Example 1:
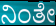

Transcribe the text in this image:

ನಿಂತೇ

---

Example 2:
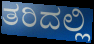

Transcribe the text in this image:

ತರಿದಲ್ಲಿ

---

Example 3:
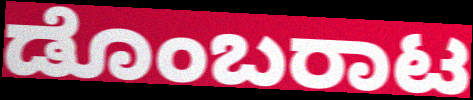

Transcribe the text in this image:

ಡೊಂಬರಾಟ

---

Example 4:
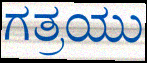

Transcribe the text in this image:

ಗತ್ರಯು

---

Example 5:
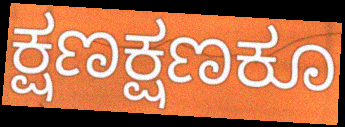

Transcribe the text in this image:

ಕ್ಷಣಕ್ಷಣಕೂ